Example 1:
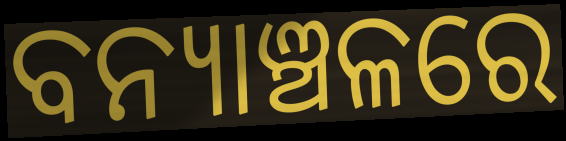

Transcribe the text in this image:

ବନ୍ୟାଞ୍ଚଳରେ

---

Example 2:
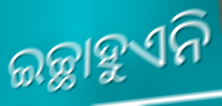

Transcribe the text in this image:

ଇଚ୍ଛାହୁଏନି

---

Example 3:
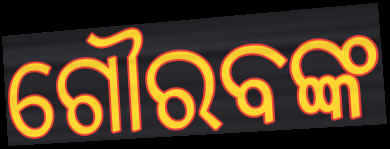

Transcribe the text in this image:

ଗୌରବଙ୍କ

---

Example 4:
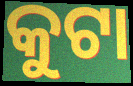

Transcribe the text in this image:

କୁଟା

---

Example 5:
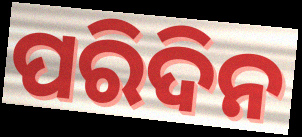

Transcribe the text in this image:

ପରିଦିନ